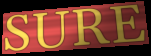
SURE